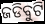
ଜଡିବୁଟି